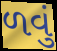
ળવું